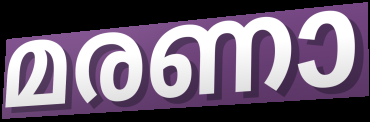
മരണാ